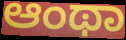
ಆಂಥಾ